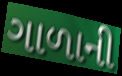
ગાળાની